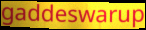
gaddeswarup